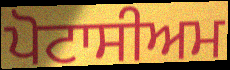
ਪੋਟਾਸੀਅਮ